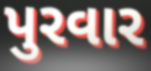
પુરવાર